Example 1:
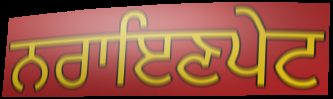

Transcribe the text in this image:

ਨਰਾਇਣਪੇਟ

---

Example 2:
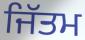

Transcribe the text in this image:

ਜਿੱਤਮ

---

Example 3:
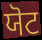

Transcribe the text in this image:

ਯੋਟ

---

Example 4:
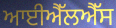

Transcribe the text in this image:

ਆਈਐੱਲਐੱਸ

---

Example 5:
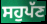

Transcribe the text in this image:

ਸਹੁਪੱਣ